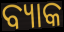
ବ୍ୟାକ